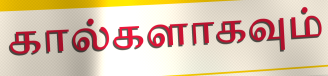
கால்களாகவும்